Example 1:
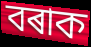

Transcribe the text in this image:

বৰাক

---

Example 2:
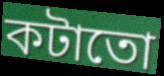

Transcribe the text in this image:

কটাতো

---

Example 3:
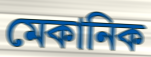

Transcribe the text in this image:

মেকানিক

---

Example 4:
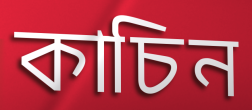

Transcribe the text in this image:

কাচিন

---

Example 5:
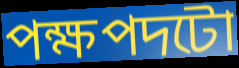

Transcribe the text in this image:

পক্ষপদটো